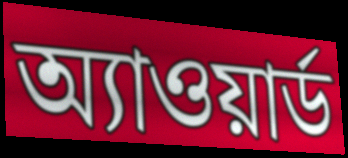
অ্যাওয়ার্ড